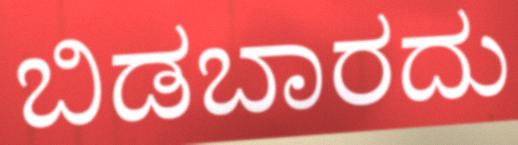
ಬಿಡಬಾರದು